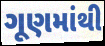
ગૂણમાંથી